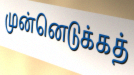
முன்னெடுக்கத்